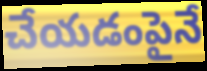
చేయడంపైనే